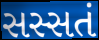
સસ્સતં